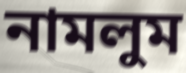
নামলুম